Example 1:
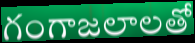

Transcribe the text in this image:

గంగాజలాలతో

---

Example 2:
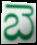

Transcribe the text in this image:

బె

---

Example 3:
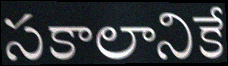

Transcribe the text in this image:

సకాలానికే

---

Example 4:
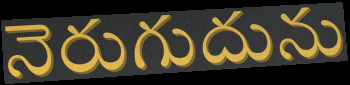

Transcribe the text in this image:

నెరుగుదును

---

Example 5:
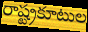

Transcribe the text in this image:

రాష్ట్రకూటుల